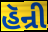
હૅન્રી